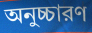
অনুচ্চারণ